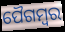
ପୈଗମ୍ବର